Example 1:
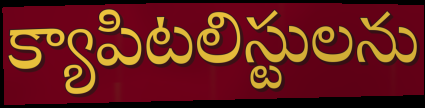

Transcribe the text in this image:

క్యాపిటలిస్టులను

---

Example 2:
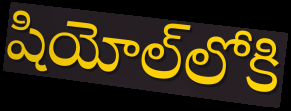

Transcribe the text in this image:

షియోల్‌లోకి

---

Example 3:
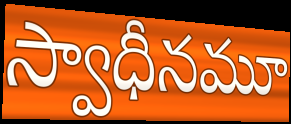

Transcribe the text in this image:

స్వాధీనమూ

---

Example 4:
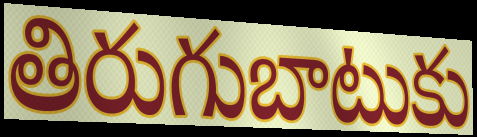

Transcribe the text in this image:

తిరుగుబాటుకు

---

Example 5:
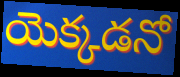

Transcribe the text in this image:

యెక్కడనో